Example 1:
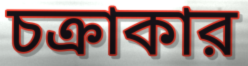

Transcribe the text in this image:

চক্রাকার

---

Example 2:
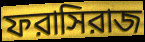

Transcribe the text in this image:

ফরাসিরাজ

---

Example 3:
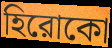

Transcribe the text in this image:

হিরোকো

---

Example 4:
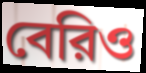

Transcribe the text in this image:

বেরিও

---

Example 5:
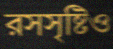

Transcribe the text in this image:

রসসৃষ্টিও